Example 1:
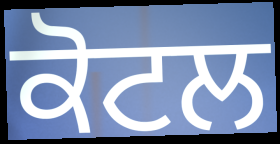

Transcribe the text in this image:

ਕੋਟਲ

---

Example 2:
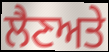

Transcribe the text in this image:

ਲੈਣਅਤੇ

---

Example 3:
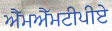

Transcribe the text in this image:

ਐੱਮਐੱਮਟੀਪੀਏ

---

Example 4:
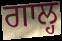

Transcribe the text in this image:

ਗਾਲ੍ਹ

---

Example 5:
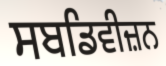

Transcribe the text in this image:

ਸਬਡਿਵੀਜ਼ਨ